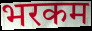
भरकम